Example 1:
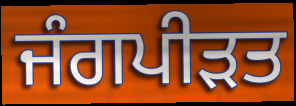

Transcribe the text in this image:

ਜੰਗਪੀੜਤ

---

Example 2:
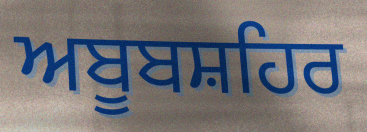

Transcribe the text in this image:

ਅਬੂਬਸ਼ਹਿਰ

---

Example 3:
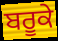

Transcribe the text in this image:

ਬਰੂਕੇ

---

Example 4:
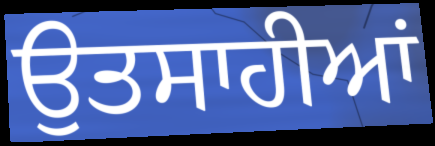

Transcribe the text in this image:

ਉਤਸਾਹੀਆਂ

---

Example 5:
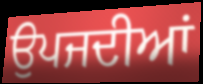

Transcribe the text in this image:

ਉਪਜਦੀਆਂ